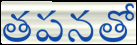
తపనతో